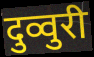
दुव्वुरी